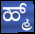
ಹ್ಮ್